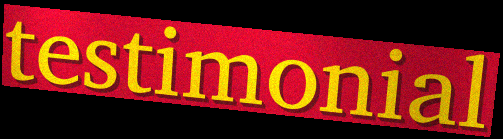
testimonial